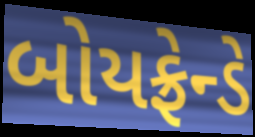
બોયફ્રેન્ડે